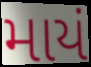
માયં